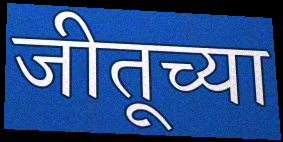
जीतूच्या